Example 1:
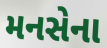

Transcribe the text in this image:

મનસેના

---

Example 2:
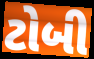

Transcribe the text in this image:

ટોબી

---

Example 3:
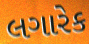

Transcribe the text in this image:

લગારેક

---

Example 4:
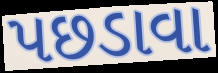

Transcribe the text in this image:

પછડાવા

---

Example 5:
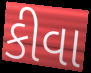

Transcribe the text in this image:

કીવા